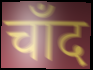
चाँद